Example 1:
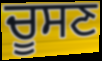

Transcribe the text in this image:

ਚੂਸਣ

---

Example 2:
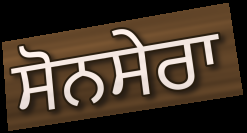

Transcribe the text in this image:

ਸੋਨਸੇਰਾ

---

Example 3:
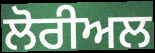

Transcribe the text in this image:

ਲੋਰੀਅਲ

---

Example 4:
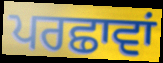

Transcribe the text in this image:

ਪਰਛਾਵਾਂ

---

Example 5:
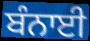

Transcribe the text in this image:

ਬੰਨਾਈ